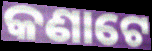
କଣାଟେ